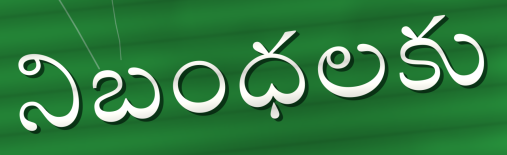
నిబంధలకు